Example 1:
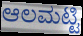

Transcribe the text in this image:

ಆಲಮಟ್ಟಿ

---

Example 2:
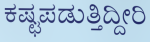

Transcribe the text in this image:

ಕಷ್ಟಪಡುತ್ತಿದ್ದೀರಿ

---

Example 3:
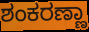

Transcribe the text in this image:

ಶಂಕರಣ್ಣಾ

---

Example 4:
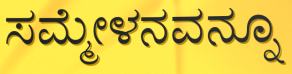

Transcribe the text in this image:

ಸಮ್ಮೇಳನವನ್ನೂ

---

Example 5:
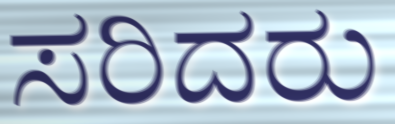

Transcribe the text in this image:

ಸರಿದರು